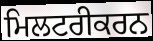
ਮਿਲਟਰੀਕਰਨ